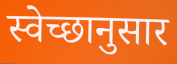
स्वेच्छानुसार